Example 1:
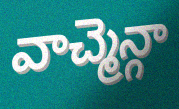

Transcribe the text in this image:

వాచ్మెన్గా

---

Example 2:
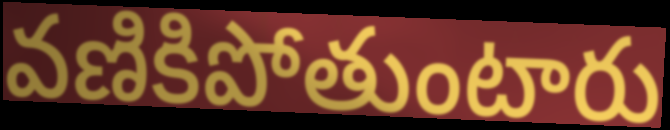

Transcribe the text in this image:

వణికిపోతుంటారు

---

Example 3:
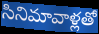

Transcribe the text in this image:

సినిమావాళ్లతో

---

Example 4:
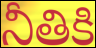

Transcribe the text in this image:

నీతికి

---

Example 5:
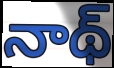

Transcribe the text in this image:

నాథ్